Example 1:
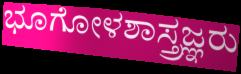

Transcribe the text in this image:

ಭೂಗೋಳಶಾಸ್ತ್ರಜ್ಞರು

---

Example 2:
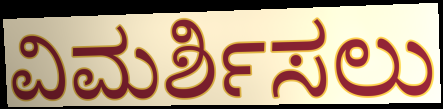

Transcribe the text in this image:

ವಿಮರ್ಶಿಸಲು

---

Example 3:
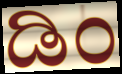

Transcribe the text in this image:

ಡಿಂ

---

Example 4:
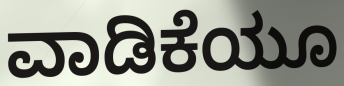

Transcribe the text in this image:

ವಾಡಿಕೆಯೂ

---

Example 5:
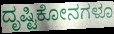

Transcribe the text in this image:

ದೃಷ್ಟಿಕೋನಗಳೂ